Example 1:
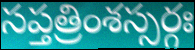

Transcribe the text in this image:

సప్తత్రింశస్సర్గః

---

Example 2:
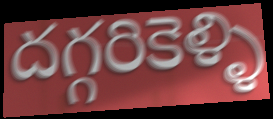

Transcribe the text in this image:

దగ్గరికెళ్ళి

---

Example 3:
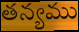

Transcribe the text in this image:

తన్యము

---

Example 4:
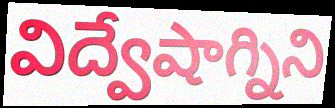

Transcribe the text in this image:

విద్వేషాగ్నిని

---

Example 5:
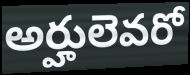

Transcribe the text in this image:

అర్హులెవరో